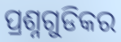
ପ୍ରଶ୍ନଗୁଡିକର